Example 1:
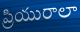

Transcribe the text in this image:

ప్రియురాలా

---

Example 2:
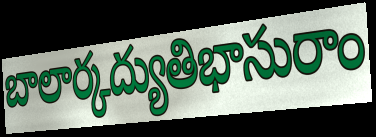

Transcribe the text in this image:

బాలార్కద్యుతిభాసురాం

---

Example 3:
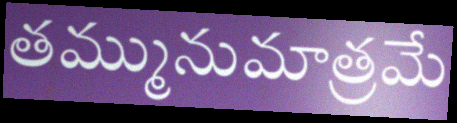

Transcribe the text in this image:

తమ్మునుమాత్రమే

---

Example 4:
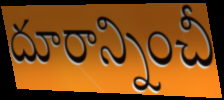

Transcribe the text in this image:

దూరాన్నించీ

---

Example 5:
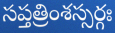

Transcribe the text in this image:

సప్తత్రింశస్సర్గః